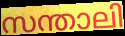
സന്താലി